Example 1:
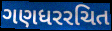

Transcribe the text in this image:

ગણધરરચિત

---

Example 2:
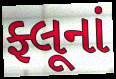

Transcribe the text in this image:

ફ્લૂનાં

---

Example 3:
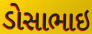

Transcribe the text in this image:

ડોસાભાઇ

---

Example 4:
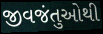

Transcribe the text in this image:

જીવજંતુઓથી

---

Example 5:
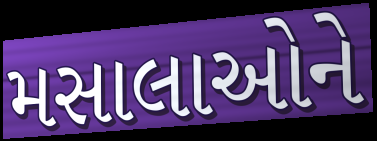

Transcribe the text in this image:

મસાલાઓને